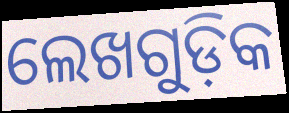
ଲେଖଗୁଡ଼ିକ